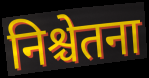
निश्चेतना